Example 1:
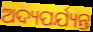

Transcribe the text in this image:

ଅଦ୍ୟପର୍ଯ୍ୟନ୍ତ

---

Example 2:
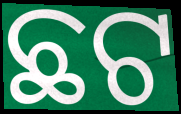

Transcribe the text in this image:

ଛଟ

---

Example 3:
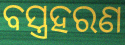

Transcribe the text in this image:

ବସ୍ତ୍ରହରଣ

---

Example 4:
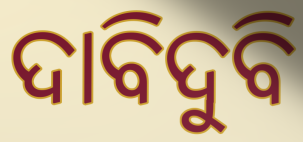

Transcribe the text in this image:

ଦାବିଦୁବି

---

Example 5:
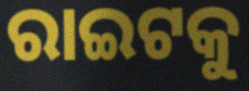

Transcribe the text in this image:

ରାଇଟକୁ